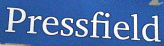
Pressfield